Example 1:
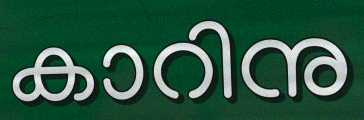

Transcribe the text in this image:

കാറിനു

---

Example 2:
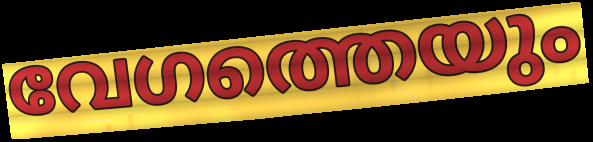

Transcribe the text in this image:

വേഗത്തെയും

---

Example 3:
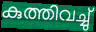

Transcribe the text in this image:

കുത്തിവച്ചു്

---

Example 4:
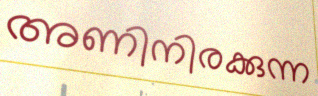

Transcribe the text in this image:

അണിനിരക്കുന്ന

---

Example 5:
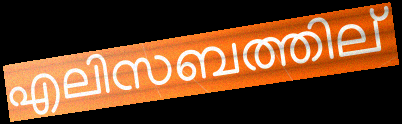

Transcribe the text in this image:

എലിസബത്തില്